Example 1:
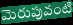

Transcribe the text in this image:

మెరుపువంటి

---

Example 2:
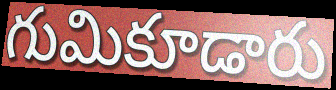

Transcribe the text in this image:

గుమికూడారు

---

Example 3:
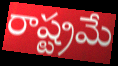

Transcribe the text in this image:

రాష్ట్రమే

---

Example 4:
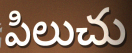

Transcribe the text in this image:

పిలుచు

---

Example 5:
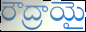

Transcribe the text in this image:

రౌద్రాయై